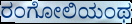
ರಂಗೋಲಿಯಂಥ